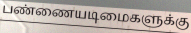
பண்ணையடிமைகளுக்கு